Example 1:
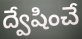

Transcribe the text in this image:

ద్వేషించే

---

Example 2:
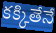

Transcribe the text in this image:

కక్కితేనే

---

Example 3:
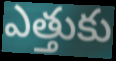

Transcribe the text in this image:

ఎత్తుకు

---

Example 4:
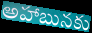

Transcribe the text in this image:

అహాబునకు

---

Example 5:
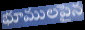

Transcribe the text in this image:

భూములపైన